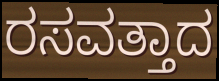
ರಸವತ್ತಾದ